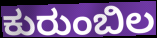
ಕುರುಂಬಿಲ